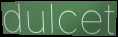
dulcet